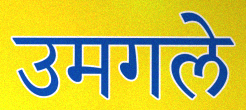
उमगले